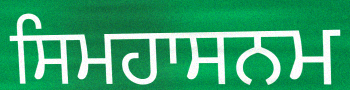
ਸਿਮਹਾਸਨਮ